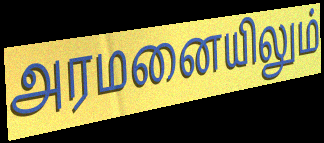
அரமனையிலும்